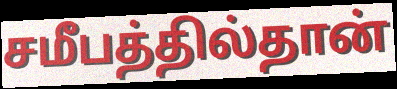
சமீபத்தில்தான்